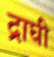
द्राघी